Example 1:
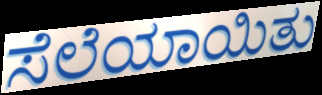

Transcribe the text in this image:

ಸೆಲೆಯಾಯಿತು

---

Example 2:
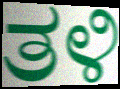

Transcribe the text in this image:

ತಳಿ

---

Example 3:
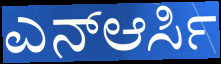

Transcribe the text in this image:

ಎನ್ಆರ್ಸಿ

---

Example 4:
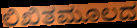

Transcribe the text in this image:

ಲಿಖಿತಮೂಲದ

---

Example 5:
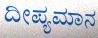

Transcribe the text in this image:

ದೀಪ್ಯಮಾನ